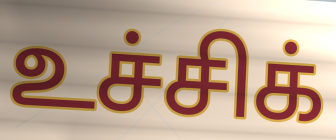
உச்சிக்